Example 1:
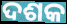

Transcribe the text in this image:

ଦଶକ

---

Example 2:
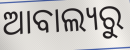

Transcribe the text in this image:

ଆବାଲ୍ୟରୁ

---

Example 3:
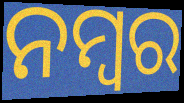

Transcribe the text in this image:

ନମ୍ବର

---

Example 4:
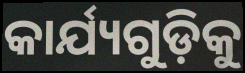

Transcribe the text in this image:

କାର୍ଯ୍ୟଗୁଡ଼ିକୁ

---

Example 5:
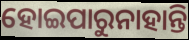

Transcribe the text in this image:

ହୋଇପାରୁନାହାନ୍ତି